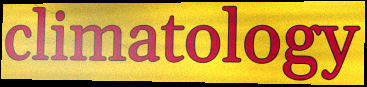
climatology